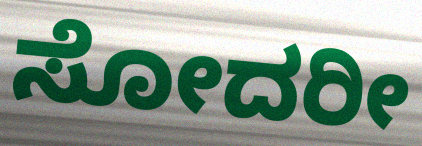
ಸೋದರೀ